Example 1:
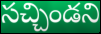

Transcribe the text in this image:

సచ్చిండని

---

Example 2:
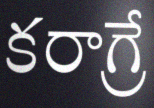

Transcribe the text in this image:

కరాగ్రే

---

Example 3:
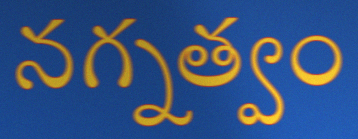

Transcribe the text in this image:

నగ్నత్వం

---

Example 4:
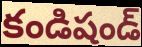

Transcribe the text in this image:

కండిషండ్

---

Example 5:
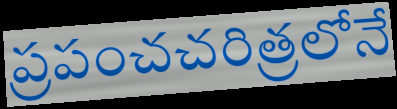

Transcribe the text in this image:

ప్రపంచచరిత్రలోనే